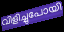
വിളിച്ചുപോയി